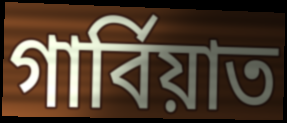
গার্বিয়াত